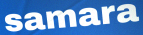
samara